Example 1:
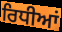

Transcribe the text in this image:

ਰਿਧੀਆਂ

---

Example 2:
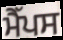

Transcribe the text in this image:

ਮੈੱਪਸ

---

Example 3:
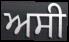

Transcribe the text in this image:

ਅਸੀ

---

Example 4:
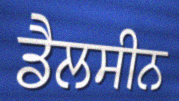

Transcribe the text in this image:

ਡੈਲਸੀਨ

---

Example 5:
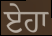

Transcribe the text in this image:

ਏਹਾ